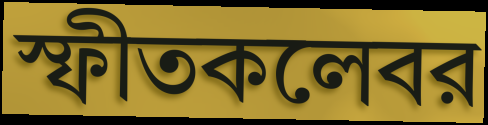
স্ফীতকলেবর